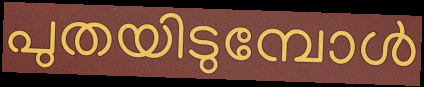
പുതയിടുമ്പോൾ